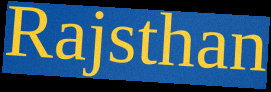
Rajsthan